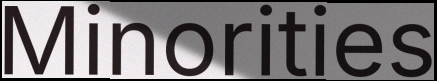
Minorities